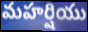
మహర్షియు